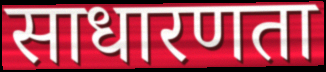
साधारणता